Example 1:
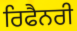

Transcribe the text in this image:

ਰਿਫੈਨਰੀ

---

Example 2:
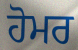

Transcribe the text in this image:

ਹੋਮਰ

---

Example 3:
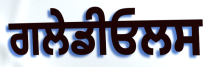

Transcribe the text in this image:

ਗਲੇਡੀਓਲਸ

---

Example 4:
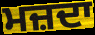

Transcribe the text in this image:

ਮਜ਼ਦਾ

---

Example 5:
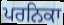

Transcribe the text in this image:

ਪਰਨਿਕਾ